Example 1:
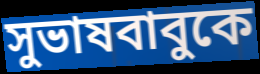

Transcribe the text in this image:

সুভাষবাবুকে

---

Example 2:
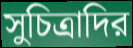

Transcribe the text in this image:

সুচিত্রাদির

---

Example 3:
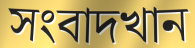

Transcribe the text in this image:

সংবাদখান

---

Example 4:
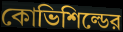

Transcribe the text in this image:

কোভিশিল্ডের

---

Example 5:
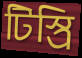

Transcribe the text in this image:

টিস্ত্রি